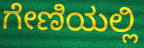
ಗೇಣಿಯಲ್ಲಿ